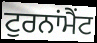
ਟੁਰਨਾਂਮੈਂਟ